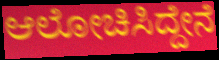
ಆಲೋಚಿಸಿದ್ದೇನೆ